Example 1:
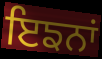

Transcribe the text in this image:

ਇਙਨਾਂ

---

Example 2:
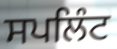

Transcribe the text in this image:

ਸਪਲਿੰਟ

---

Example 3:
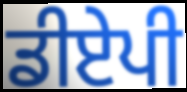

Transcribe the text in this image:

ਡੀਏਪੀ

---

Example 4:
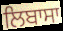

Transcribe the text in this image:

ਲਿਬਾਸਾ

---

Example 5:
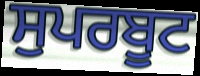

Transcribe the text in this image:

ਸੁਪਰਬੂਟ